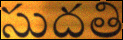
సుదతి